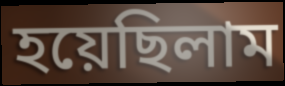
হয়েছিলাম